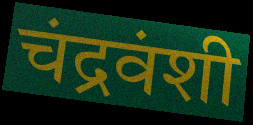
चंद्रवंशी